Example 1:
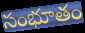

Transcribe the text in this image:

సంభూతం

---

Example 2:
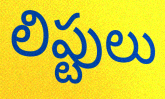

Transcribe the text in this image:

లిప్టులు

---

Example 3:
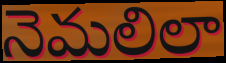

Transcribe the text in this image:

నెమలిలా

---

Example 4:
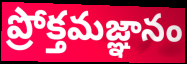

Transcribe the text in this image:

ప్రోక్తమజ్ఞానం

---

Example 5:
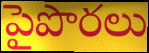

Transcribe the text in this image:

పైపొరలు